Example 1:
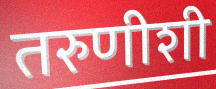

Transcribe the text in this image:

तरुणीशी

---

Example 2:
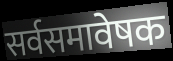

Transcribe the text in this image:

सर्वसमावेषक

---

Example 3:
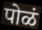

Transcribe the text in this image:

पोळं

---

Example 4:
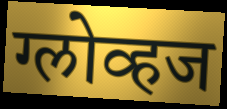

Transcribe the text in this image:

ग्लोव्हज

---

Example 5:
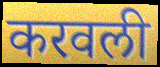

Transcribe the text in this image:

करवली